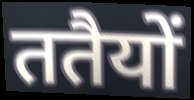
ततैयों